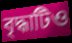
বৃদ্ধাটিও